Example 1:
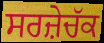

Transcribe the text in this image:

ਸਰਜ਼ੇਚੱਕ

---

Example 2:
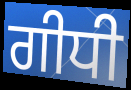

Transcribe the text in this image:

ਗੀਧੀ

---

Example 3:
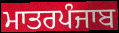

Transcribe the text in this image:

ਮਾਤਰਪੰਜਾਬ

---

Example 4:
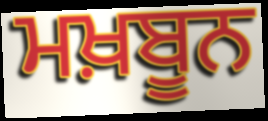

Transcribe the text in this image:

ਮਖ਼ਬੂਨ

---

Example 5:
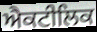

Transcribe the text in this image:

ਐਕਟੀਲਿਕ